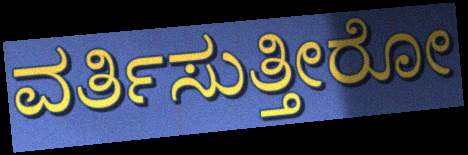
ವರ್ತಿಸುತ್ತೀರೋ